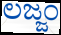
ಲಜ್ಜಂ